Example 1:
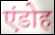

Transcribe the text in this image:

एंडोह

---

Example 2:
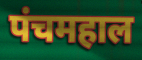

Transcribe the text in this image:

पंचमहाल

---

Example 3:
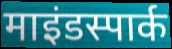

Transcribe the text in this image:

माइंडस्पार्क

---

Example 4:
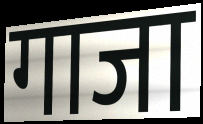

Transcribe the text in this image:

गाजा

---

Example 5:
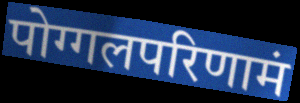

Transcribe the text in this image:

पोग्गलपरिणामं